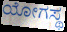
ಯೋಗಸ್ಥ